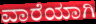
ವಾರೆಯಾಗಿ